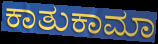
ಕಾತುಕಾಮಾ